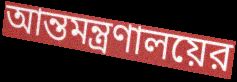
আন্তমন্ত্রণালয়ের